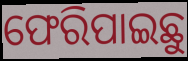
ଫେରିପାଇଛୁ